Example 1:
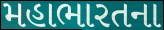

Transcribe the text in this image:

મહાભારતના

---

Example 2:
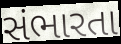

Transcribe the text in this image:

સંભારતા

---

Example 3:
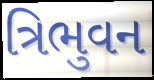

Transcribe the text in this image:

ત્રિભુવન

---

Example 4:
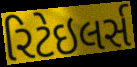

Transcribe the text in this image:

રિટેઇલર્સ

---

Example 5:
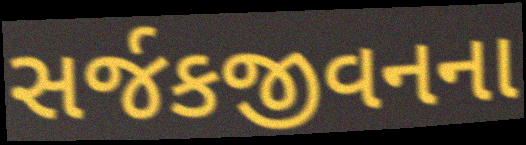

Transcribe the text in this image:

સર્જકજીવનના